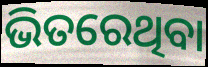
ଭିତରେଥିବା